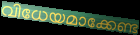
വിധേയമാക്കേണ്ട